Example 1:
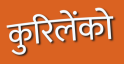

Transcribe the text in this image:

कुरिलेंको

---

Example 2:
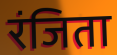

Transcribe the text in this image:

रंजिता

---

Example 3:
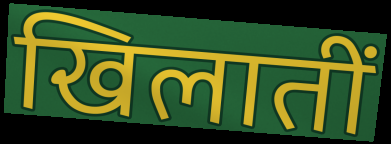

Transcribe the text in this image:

खिलातीं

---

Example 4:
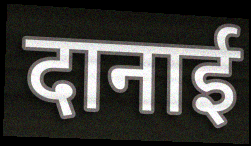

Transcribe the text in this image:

दानाई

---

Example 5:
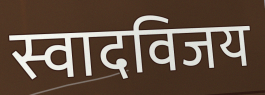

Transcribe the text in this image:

स्वादविजय